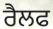
ਰੈਲਫ